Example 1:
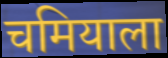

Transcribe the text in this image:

चमियाला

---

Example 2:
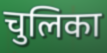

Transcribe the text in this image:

चुलिका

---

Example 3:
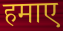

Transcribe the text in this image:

हमाए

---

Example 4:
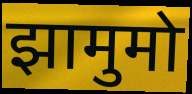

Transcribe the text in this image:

झामुमो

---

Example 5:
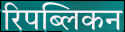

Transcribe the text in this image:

रिपब्लिकन